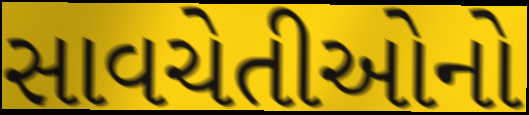
સાવચેતીઓનો